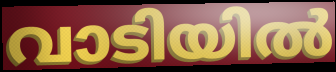
വാടിയിൽ